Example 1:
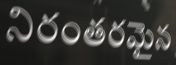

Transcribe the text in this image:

నిరంతరమైన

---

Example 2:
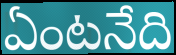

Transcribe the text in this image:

ఏంటనేది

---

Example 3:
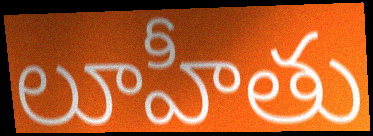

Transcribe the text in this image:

లూహీతు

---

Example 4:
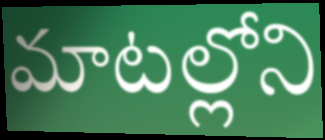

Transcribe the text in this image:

మాటల్లోని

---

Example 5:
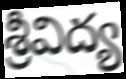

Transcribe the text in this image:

శ్రీవిద్య